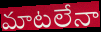
మాటలేనా